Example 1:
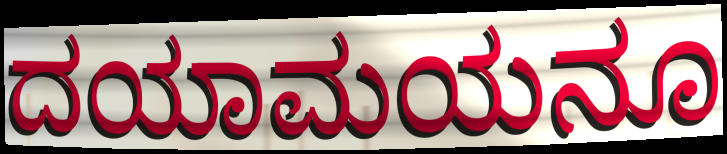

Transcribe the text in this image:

ದಯಾಮಯನೂ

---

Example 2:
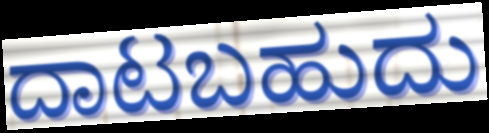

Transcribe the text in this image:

ದಾಟಬಹುದು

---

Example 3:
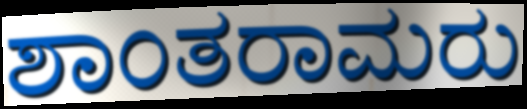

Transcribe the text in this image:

ಶಾಂತರಾಮರು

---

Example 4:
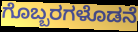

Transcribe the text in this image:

ಗೊಬ್ಬರಗಳೊಡನೆ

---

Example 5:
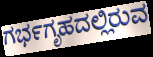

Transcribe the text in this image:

ಗರ್ಭಗೃಹದಲ್ಲಿರುವ